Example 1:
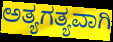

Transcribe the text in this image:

ಅತ್ಯಗತ್ಯವಾಗಿ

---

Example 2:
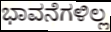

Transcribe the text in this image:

ಭಾವನೆಗಳಿಲ್ಲ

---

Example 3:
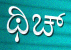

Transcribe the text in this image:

ಥಿಚ್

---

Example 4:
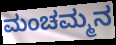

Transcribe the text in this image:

ಮಂಚಮ್ಮನ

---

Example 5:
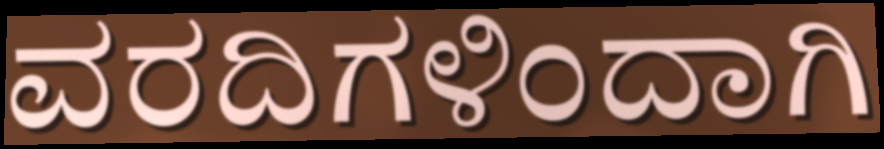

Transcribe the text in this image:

ವರದಿಗಳಿಂದಾಗಿ